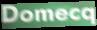
Domecq